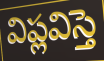
విప్లవిస్తె